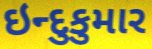
ઇન્દુકુમાર